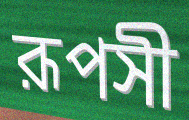
রূপসী